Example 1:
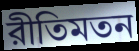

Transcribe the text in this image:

রীতিমতন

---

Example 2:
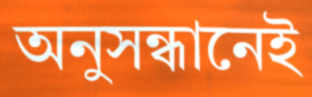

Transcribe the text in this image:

অনুসন্ধানেই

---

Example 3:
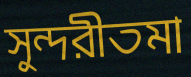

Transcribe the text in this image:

সুন্দরীতমা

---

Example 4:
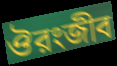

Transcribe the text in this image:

ঔরংজীব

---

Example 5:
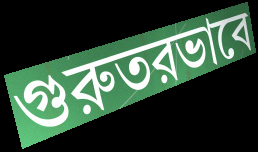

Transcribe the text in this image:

গুরুতরভাবে